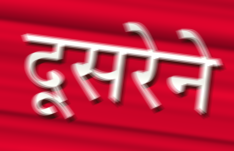
दूसरेने